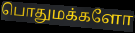
பொதுமக்களோ